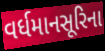
વર્ધમાનસૂરિના